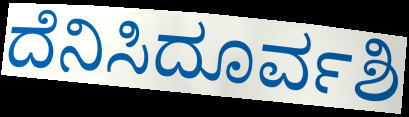
ದೆನಿಸಿದೂರ್ವಶಿ